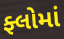
ફ્લોમાં